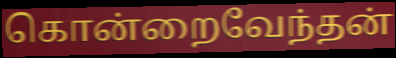
கொன்றைவேந்தன்